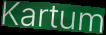
Kartum